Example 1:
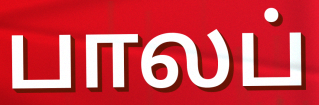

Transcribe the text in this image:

பாலப்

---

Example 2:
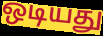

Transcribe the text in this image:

ஒடியது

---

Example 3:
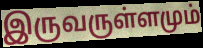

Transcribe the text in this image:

இருவருள்ளமும்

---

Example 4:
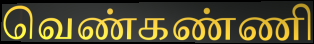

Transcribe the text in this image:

வெண்கண்ணி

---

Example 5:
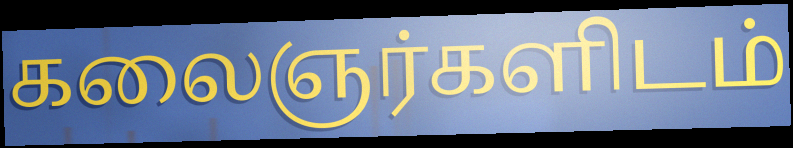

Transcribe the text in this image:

கலைஞர்களிடம்